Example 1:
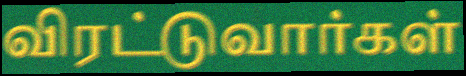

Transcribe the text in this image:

விரட்டுவார்கள்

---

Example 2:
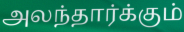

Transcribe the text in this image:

அலந்தார்க்கும்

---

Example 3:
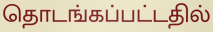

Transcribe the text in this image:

தொடங்கப்பட்டதில்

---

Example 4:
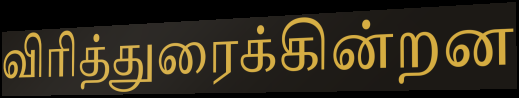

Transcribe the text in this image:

விரித்துரைக்கின்றன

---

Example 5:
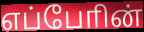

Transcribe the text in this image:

எப்பேரின்